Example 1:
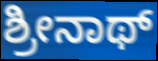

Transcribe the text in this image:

ಶ್ರೀನಾಥ್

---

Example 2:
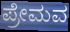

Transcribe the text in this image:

ಪ್ರೇಮವ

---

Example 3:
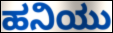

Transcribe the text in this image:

ಹನಿಯು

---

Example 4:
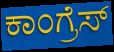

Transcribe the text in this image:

ಕಾಂಗ್ರೆಸ್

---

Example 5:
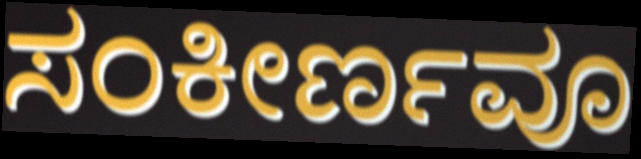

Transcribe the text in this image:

ಸಂಕೀರ್ಣವೂ